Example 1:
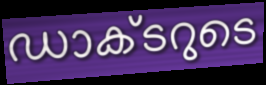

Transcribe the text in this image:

ഡാക്ടറുടെ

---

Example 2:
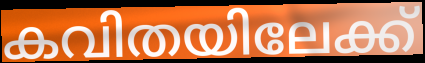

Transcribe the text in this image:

കവിതയിലേക്ക്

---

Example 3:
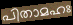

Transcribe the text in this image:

പിതാമഹഃ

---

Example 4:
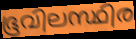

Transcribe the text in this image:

ഭൂവിലസ്ഥിര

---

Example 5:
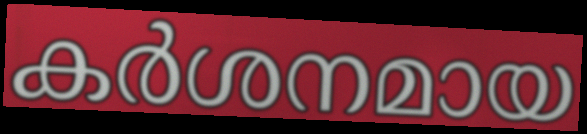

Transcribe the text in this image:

കർശനമായ